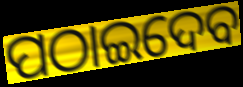
ପଠାଇଦେବ